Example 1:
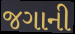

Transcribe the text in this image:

જગાની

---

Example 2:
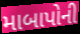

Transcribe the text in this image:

માબાપોની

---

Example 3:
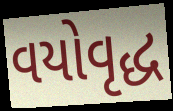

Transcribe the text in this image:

વયોવૃદ્ધ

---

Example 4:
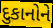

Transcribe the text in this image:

દુકાનોને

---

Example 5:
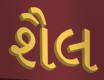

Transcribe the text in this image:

શૈલ